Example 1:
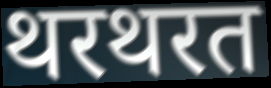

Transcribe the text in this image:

थरथरत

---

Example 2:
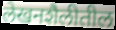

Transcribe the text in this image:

लेखनशैलीतील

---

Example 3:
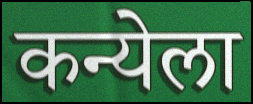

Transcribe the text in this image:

कन्येला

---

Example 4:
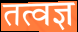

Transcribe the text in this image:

तत्वज्ञ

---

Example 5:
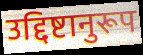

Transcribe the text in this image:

उद्दिष्टानुरूप